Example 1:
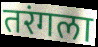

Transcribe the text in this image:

तरंगला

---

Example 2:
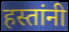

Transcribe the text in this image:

हस्तांनी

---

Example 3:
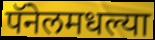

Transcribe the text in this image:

पॅनेलमधल्या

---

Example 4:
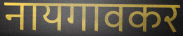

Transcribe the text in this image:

नायगावकर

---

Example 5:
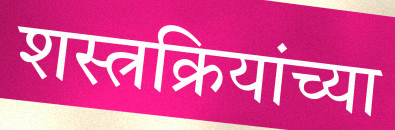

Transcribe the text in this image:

शस्त्रक्रियांच्या